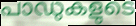
പാഡുകളുടെ